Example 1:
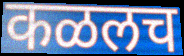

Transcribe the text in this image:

कळलच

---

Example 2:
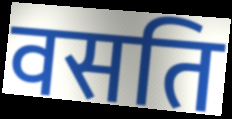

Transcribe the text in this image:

वसति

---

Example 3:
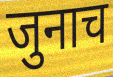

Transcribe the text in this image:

जुनाच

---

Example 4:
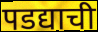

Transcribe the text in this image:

पडद्याची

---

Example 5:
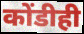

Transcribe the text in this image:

कोंडीही